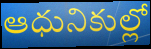
ఆధునికుల్లో